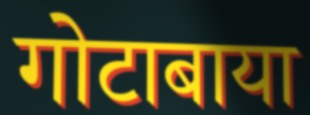
गोटाबाया